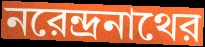
নরেন্দ্রনাথের